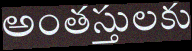
అంతస్తులకు